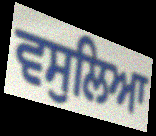
ਵਸੁਲਿਆ